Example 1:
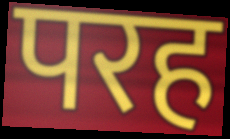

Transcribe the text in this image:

परह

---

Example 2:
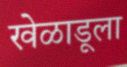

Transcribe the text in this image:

खेळाडूला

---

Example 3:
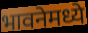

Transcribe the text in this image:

भावनेमध्ये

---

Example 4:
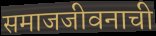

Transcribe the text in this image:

समाजजीवनाची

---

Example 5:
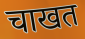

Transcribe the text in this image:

चाखत